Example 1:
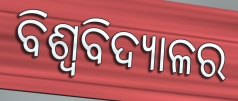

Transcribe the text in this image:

ବିଶ୍ୱବିଦ୍ୟାଳର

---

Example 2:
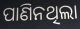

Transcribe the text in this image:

ପାଣିନଥିଲା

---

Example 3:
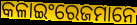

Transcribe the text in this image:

କଳାଇଂରେଜମାନେ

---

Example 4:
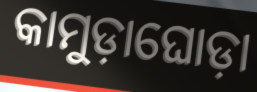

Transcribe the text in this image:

କାମୁଡ଼ାଘୋଡ଼ା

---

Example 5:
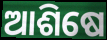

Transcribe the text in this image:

ଆଶିଷେ